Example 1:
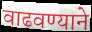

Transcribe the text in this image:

वाढवण्याने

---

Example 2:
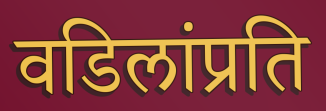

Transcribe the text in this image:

वडिलांप्रति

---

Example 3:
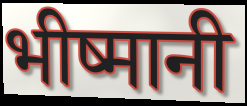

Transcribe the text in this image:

भीष्मानी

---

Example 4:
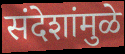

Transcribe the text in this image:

संदेशांमुळे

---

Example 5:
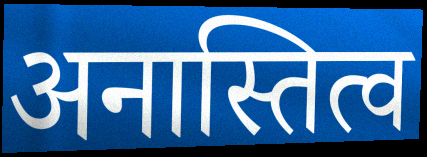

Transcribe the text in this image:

अनास्तित्व